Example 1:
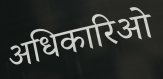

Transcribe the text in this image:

अधिकारिओ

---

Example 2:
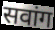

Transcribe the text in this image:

सवांग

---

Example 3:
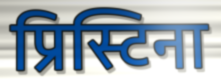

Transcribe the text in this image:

प्रिस्टिना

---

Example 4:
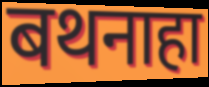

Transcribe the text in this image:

बथनाहा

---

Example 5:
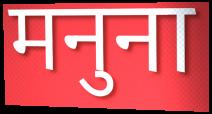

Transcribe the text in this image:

मनुना